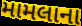
મામલાના